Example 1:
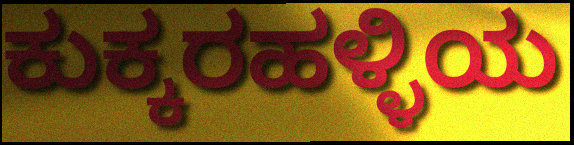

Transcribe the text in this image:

ಕುಕ್ಕರಹಳ್ಳಿಯ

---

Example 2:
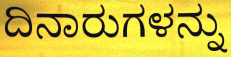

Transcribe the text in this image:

ದಿನಾರುಗಳನ್ನು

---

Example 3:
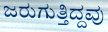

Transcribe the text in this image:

ಜರುಗುತ್ತಿದ್ದವು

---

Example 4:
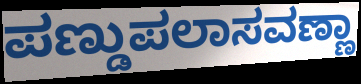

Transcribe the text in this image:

ಪಣ್ಡುಪಲಾಸವಣ್ಣಾ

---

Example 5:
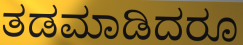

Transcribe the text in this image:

ತಡಮಾಡಿದರೂ